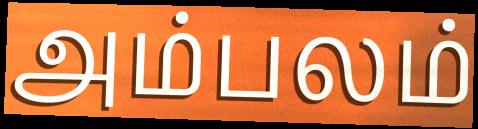
அம்பலம்